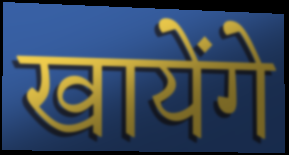
खायेंगे